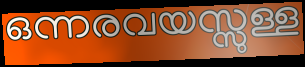
ഒന്നരവയസ്സുള്ള